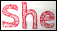
She